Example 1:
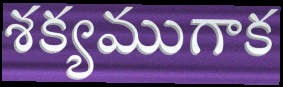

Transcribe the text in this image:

శక్యముగాక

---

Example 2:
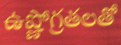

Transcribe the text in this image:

ఉష్ణోగ్రతలతో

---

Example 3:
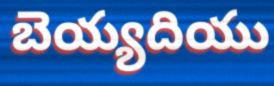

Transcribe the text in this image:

బెయ్యదియు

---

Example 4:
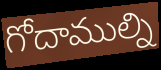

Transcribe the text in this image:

గోదాముల్ని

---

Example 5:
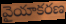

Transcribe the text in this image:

వైయాకరణ